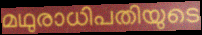
മഥുരാധിപതിയുടെ